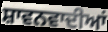
ਸ਼ਾਵਨਵਾਦੀਆਂ